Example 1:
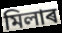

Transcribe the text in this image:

মিলাৰ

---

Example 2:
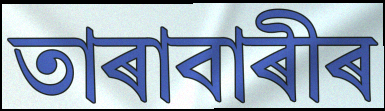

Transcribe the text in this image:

তাৰাবাৰীৰ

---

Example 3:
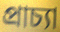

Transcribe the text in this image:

প্ৰাচ্যা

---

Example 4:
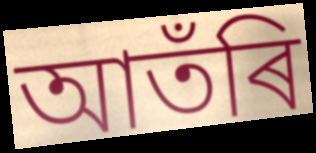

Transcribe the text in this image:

আতঁৰি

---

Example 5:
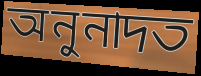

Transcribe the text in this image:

অনুনাদত